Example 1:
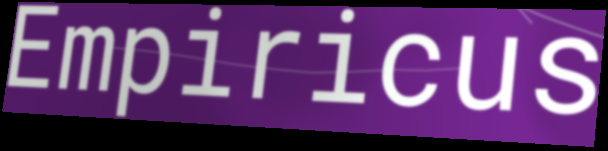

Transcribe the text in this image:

Empiricus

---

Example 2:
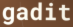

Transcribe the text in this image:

gadit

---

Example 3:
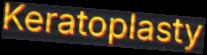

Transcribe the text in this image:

Keratoplasty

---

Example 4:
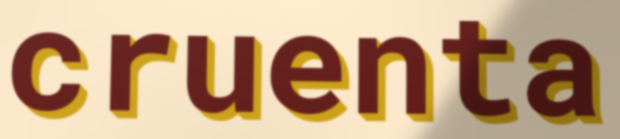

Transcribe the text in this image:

cruenta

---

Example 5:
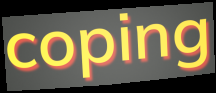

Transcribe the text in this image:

coping